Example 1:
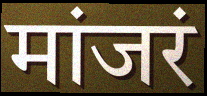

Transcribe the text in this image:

मांजरं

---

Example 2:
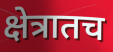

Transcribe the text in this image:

क्षेत्रातच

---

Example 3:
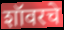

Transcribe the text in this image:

शॉवरचे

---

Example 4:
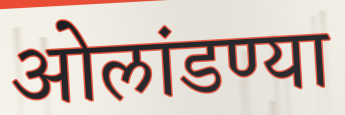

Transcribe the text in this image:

ओलांडण्या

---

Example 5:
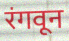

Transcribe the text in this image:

रंगवून